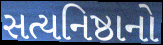
સત્યનિષ્ઠાનો